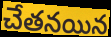
చేతనయిన